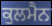
ਕੁਲਮੈਨ